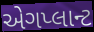
એગપ્લાન્ટ